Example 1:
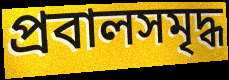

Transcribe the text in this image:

প্রবালসমৃদ্ধ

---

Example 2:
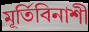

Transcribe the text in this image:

মূর্তিবিনাশী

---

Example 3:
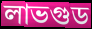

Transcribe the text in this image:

লাভগুড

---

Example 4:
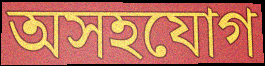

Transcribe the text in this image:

অসহযোগ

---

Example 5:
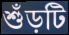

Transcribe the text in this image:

শুঁড়টি